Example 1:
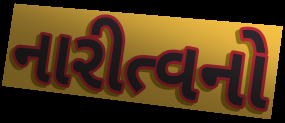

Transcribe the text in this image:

નારીત્વનો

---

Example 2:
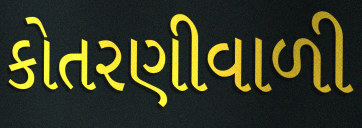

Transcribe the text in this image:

કોતરણીવાળી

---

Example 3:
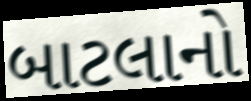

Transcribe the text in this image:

બાટલાનો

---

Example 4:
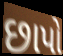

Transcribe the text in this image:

છાપો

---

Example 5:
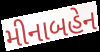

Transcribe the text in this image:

મીનાબહેન